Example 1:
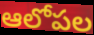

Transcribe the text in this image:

ఆలోపల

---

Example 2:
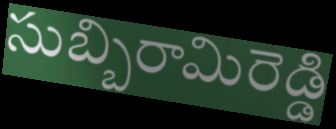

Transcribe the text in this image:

సుబ్బిరామిరెడ్డి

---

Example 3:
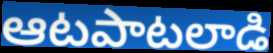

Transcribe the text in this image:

ఆటపాటలాడి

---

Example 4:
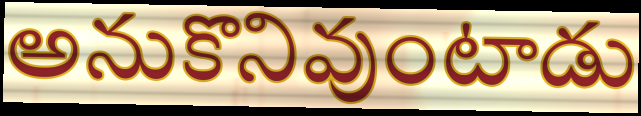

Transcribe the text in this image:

అనుకొనివుంటాడు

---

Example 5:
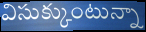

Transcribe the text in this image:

విసుక్కుంటున్నా